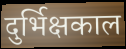
दुर्भिक्षकाल